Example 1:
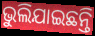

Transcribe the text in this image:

ଭୁଲିଯାଇଛନ୍ତି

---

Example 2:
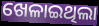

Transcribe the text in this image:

ଖେଳାଇଥିଲା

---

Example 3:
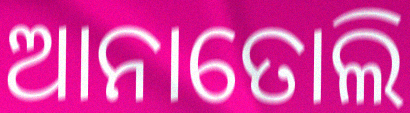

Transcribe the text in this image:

ଆନାତୋଲି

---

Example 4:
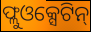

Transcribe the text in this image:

ଫ୍ଲୁଓକ୍ସେଟିନ୍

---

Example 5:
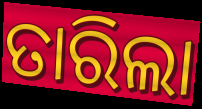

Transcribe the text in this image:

ତାରିଲା